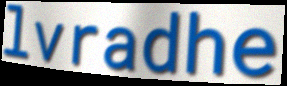
lvradhe